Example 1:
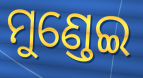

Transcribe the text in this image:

ମୁଣ୍ଡେଇ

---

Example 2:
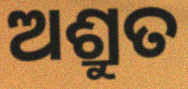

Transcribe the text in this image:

ଅଶ୍ରୁତ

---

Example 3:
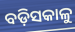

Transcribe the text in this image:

ବଡ଼ିସକାଳୁ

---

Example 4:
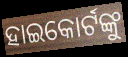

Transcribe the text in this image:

ହାଇକୋର୍ଟଙ୍କୁ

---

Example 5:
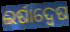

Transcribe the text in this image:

ଈର୍ଷାଦ୍ଵେଷ